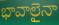
భావాలైనా